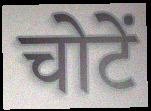
चोटें